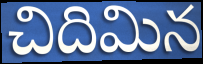
చిదిమిన